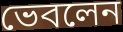
ভেবলেন